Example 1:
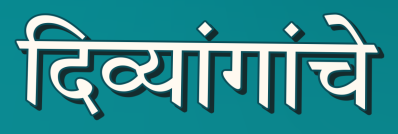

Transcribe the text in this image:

दिव्यांगांचे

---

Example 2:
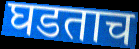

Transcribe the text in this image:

घडताच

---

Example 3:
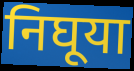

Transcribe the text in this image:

निघूया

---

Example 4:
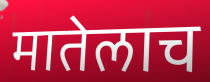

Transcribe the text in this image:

मातेलाच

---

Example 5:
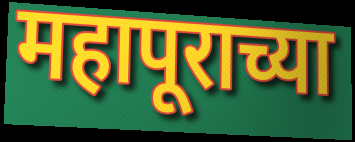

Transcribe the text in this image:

महापूराच्या